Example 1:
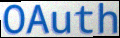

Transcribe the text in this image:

OAuth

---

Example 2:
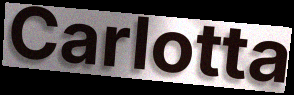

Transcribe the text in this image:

Carlotta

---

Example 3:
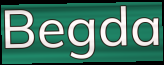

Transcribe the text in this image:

Begda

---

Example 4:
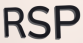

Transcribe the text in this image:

RSP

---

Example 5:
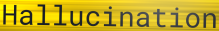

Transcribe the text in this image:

Hallucination